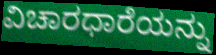
ವಿಚಾರಧಾರೆಯನ್ನು